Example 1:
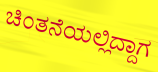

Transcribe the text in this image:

ಚಿಂತನೆಯಲ್ಲಿದ್ದಾಗ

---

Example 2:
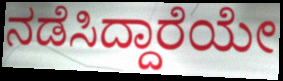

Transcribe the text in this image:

ನಡೆಸಿದ್ದಾರೆಯೇ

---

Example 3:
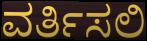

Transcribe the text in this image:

ವರ್ತಿಸಲಿ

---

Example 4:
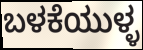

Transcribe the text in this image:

ಬಳಕೆಯುಳ್ಳ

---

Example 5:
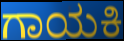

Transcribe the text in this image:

ಗಾಯಕಿ